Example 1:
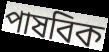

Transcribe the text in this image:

পাষবিক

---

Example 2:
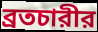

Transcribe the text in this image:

ব্রতচারীর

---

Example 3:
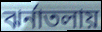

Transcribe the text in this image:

ঝর্নাতলায়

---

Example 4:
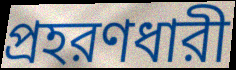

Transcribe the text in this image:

প্রহরণধারী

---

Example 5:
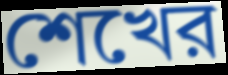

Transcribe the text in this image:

শেখের